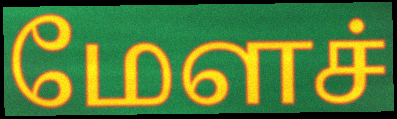
மேளச்